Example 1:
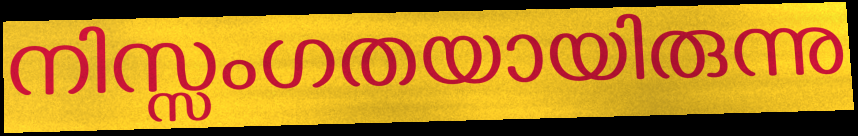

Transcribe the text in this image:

നിസ്സംഗതയായിരുന്നു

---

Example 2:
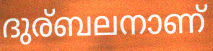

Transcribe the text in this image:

ദുര്ബലനാണ്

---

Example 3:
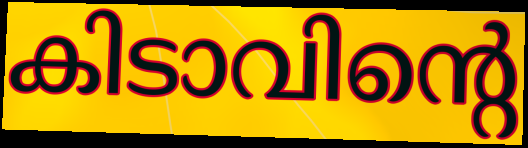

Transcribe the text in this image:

കിടാവിന്റെ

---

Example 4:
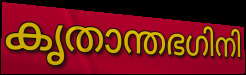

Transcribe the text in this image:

കൃതാന്തഭഗിനി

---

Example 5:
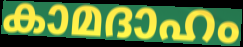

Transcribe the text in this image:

കാമദാഹം